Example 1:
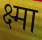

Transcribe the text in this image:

क्ष्मा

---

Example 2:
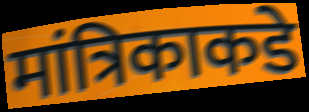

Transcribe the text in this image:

मांत्रिकाकडे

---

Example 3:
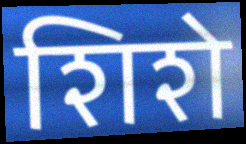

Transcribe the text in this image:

शिशे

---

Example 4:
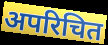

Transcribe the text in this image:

अपरिचित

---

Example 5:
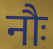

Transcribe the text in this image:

नौः